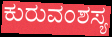
ಕುರುವಂಶಸ್ಯ